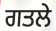
ਗਤਲੇ